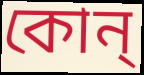
কোন্